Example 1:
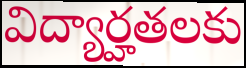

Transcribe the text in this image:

విద్యార్హతలకు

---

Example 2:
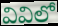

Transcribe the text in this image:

వివిలో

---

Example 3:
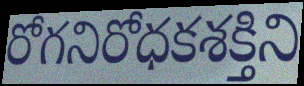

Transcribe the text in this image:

రోగనిరోధకశక్తిని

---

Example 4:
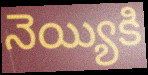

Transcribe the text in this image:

నెయ్యికి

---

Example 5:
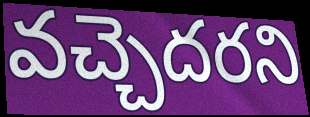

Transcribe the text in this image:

వచ్చెదరని